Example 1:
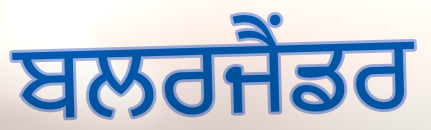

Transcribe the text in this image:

ਬਲਰਜੈਂਡਰ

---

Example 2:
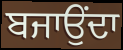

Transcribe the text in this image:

ਬਜਾਉਂਦਾ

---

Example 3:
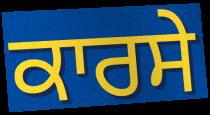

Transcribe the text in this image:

ਕਾਰਸੇ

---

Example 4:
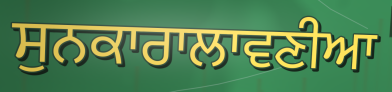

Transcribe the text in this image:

ਸੁਨਕਾਰਾਲਾਵਣੀਆ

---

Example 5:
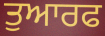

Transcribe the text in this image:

ਤੁਆਰਫ